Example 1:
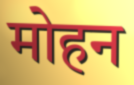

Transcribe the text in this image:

मोहन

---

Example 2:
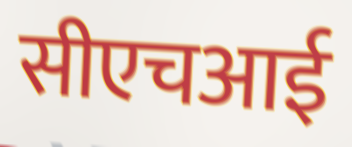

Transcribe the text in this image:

सीएचआई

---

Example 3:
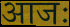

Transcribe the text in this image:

आजः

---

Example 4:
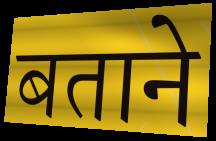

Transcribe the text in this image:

बताने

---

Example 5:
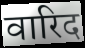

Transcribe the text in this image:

वारिद